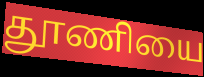
தூணியை